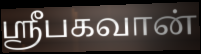
ஸ்ரீபகவான்